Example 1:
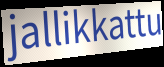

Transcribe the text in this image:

jallikkattu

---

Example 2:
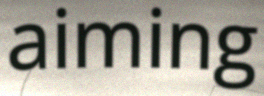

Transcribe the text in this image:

aiming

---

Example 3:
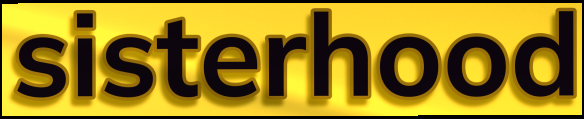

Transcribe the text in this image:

sisterhood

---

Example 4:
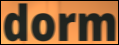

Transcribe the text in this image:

dorm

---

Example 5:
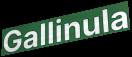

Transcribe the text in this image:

Gallinula